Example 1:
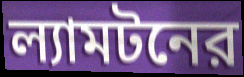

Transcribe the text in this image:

ল্যামটনের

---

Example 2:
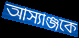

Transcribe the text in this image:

আস্যাঞ্জকে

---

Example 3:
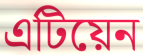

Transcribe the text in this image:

এটিয়েন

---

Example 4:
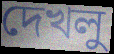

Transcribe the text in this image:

দেখলু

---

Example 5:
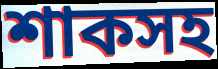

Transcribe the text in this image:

শাকসহ